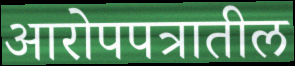
आरोपपत्रातील